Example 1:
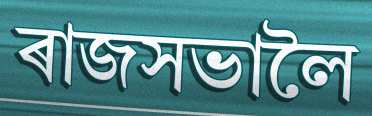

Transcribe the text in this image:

ৰাজসভালৈ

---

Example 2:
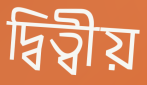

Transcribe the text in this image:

দ্বিত্বীয়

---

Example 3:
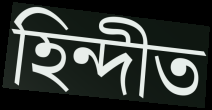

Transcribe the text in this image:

হিন্দীত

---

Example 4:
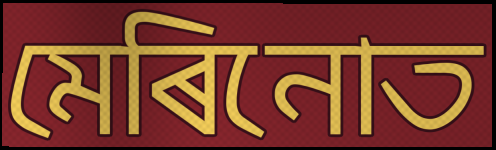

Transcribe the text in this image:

মেৰিনোত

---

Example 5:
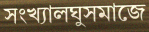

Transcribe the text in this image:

সংখ্যালঘুসমাজে